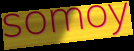
somoy